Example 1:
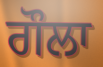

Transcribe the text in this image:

ਗੌਲਾ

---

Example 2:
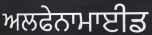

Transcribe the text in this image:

ਅਲਫੇਨਾਮਾਈਡ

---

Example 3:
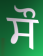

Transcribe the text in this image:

ਸੌ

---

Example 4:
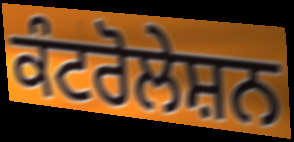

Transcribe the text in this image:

ਕੰਟਰੋਲੇਸ਼ਨ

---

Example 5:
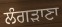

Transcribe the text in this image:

ਲੰਗੜਾਣਾ